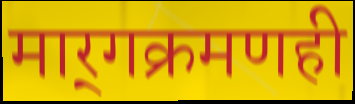
मार्गक्रमणही